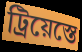
ট্ৰিয়েস্তে